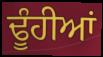
ਢੂੰਹੀਆਂ